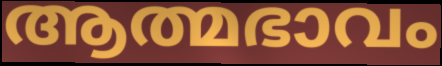
ആത്മഭാവം